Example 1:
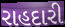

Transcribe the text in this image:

રાહદારી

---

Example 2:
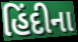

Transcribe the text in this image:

હિંદીના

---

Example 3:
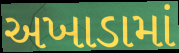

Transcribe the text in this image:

અખાડામાં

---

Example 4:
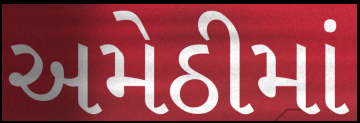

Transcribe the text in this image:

અમેઠીમાં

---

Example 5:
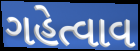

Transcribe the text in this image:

ગહેત્વાવ